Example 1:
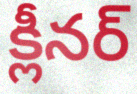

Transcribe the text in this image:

క్లీనర్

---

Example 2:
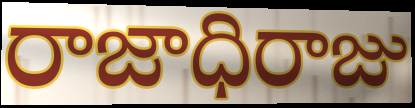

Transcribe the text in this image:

రాజాధిరాజు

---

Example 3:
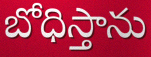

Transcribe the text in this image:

బోధిస్తాను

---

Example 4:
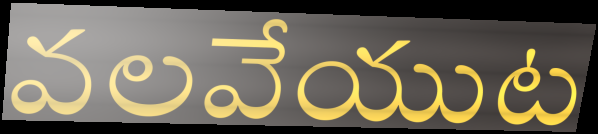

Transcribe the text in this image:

వలవేయుట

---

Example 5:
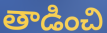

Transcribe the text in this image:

తాడించి